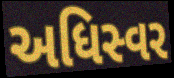
અધિસ્વર